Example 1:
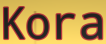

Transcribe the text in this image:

Kora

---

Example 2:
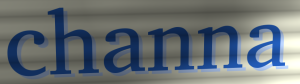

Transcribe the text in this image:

channa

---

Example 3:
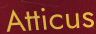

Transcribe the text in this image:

Atticus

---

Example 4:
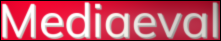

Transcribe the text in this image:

Mediaeval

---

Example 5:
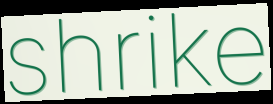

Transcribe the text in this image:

shrike